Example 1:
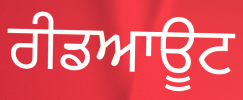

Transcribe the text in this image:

ਰੀਡਆਊਟ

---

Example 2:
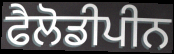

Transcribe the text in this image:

ਫੈਲੋਡੀਪੀਨ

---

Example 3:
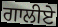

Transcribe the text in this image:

ਗਾਲੀਏ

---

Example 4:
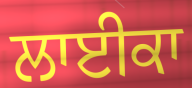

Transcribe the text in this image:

ਲਾਈਕਾ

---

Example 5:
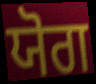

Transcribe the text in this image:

ਯੋਗ